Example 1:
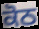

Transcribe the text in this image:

ਕੋਠ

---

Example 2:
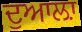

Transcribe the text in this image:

ਦੁਆਲ਼ਾ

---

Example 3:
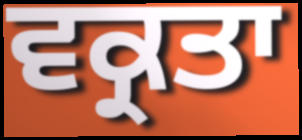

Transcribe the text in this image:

ਵਕ੍ਰਤਾ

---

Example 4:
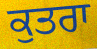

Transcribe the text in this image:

ਕੁਤਰਾ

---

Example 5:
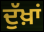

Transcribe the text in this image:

ਦੁੱਖ਼ਾਂ